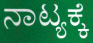
ನಾಟ್ಯಕ್ಕೆ